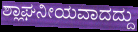
ಶ್ಲಾಘನೀಯವಾದದ್ದು